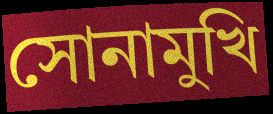
সোনামুখি